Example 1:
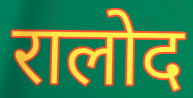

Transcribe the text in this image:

रालोद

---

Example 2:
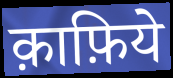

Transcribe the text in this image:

क़ाफ़िये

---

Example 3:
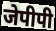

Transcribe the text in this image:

जेपीपी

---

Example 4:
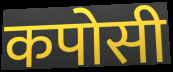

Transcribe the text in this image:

कपोसी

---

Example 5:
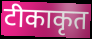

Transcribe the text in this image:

टीकाकृत